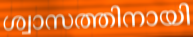
ശ്വാസത്തിനായി